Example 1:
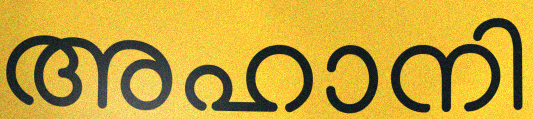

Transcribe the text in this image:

അഹാനി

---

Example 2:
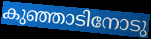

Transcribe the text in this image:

കുഞ്ഞാടിനോടു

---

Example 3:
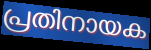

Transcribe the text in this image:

പ്രതിനായക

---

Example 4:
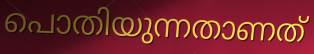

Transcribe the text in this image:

പൊതിയുന്നതാണത്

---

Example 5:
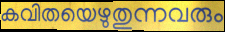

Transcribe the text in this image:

കവിതയെഴുതുന്നവരും